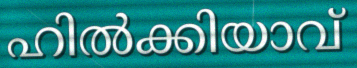
ഹിൽക്കിയാവ്